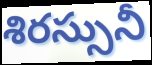
శిరస్సునీ